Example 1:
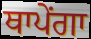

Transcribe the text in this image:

ਥਾਪੇਂਗਾ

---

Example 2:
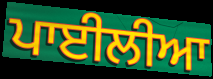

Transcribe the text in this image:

ਪਾਈਲੀਆ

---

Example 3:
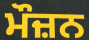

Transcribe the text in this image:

ਮੌਜ਼ਨ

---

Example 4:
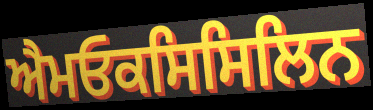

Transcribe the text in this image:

ਐਮਓਕਸਿਸਿਲਿਨ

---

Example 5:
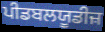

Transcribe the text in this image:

ਪੀਡਬਲਯੂਡੀਜ਼